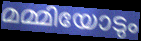
മമ്മിയോടും